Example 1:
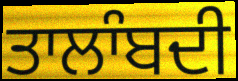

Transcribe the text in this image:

ਤਾਲਾੰਬਦੀ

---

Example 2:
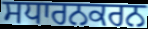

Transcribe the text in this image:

ਸਧਾਰਨਕਰਨ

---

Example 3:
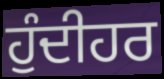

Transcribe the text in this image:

ਹੁੰਦੀਹਰ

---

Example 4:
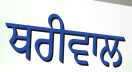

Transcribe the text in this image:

ਥਰੀਵਾਲ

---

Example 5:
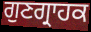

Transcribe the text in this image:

ਗੁਣਗ੍ਰਾਹਕ